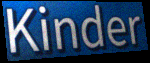
Kinder